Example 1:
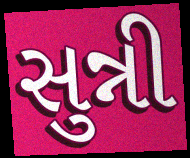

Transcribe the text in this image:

સુન્ની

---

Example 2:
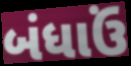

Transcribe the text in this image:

બંધાઉં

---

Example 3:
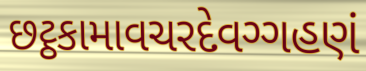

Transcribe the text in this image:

છટ્ઠકામાવચરદેવગ્ગહણં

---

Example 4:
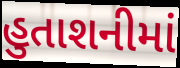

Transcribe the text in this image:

હુતાશનીમાં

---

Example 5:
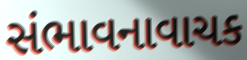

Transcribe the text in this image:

સંભાવનાવાચક